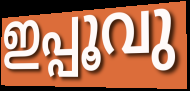
ഇപ്പൂവു